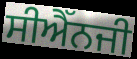
ਸੀਐੱਨਜੀ